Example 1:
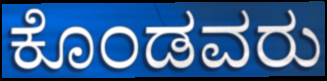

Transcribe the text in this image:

ಕೊಂಡವರು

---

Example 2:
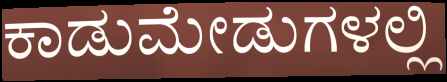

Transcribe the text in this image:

ಕಾಡುಮೇಡುಗಳಲ್ಲಿ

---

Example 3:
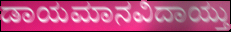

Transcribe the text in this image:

ಡಾಯಮಾನವಿದಾಯ್ತು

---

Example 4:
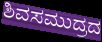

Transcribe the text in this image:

ಶಿವಸಮುದ್ರದ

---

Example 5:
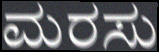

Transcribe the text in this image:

ಮರಸು